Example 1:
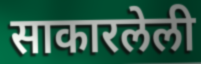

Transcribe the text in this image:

साकारलेली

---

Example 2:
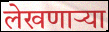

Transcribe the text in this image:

लेखणाऱ्या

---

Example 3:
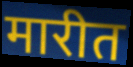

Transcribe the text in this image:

मारीत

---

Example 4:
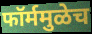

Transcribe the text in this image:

फॉर्ममुळेच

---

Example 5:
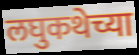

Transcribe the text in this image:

लघुकथेच्या